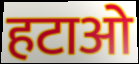
हटाओ